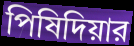
পিষিদিয়ার